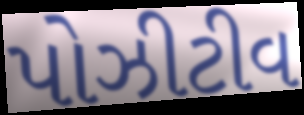
પોઝીટીવ